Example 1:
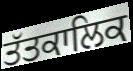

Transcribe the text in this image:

ਤੱਤਕਾਲਿਕ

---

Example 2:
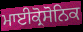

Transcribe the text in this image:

ਮਾਈਕ੍ਰੋਸੋਨਿਕ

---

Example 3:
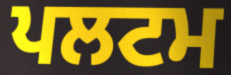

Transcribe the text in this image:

ਪਲਟਮ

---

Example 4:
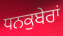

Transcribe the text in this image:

ਧਨਕੁਬੇਰਾਂ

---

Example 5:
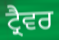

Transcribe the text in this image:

ਟ੍ਰੈਵਰ